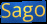
Sago